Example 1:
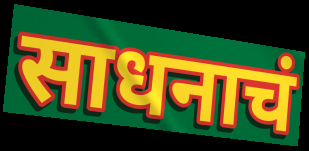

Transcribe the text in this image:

साधनाचं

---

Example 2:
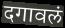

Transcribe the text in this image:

दगावलं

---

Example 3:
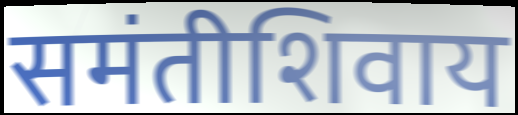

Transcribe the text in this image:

समंतीशिवाय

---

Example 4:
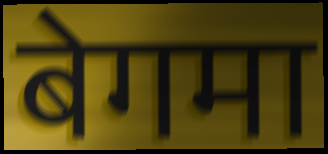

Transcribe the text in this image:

बेगमा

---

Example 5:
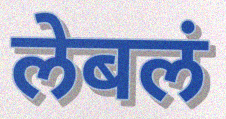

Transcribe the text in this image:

लेबलं